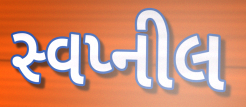
સ્વપ્નીલ